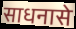
साधनासे